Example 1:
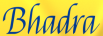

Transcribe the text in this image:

Bhadra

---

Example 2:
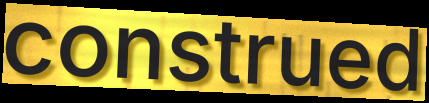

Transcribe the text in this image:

construed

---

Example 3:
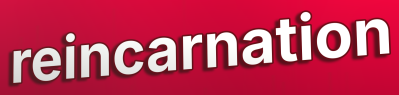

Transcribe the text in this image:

reincarnation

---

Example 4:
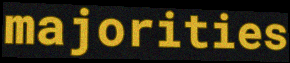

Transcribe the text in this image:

majorities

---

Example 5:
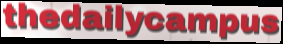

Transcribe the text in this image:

thedailycampus